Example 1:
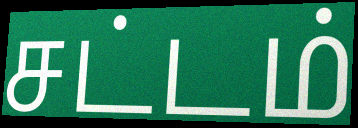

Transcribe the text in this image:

சட்டம்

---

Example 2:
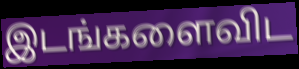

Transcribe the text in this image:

இடங்களைவிட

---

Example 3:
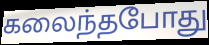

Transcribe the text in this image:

கலைந்தபோது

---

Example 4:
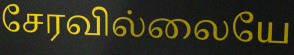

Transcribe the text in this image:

சேரவில்லையே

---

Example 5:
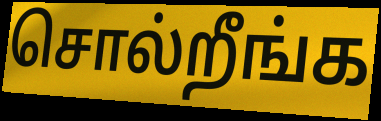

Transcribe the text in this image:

சொல்றீங்க